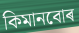
কিমানবোৰ